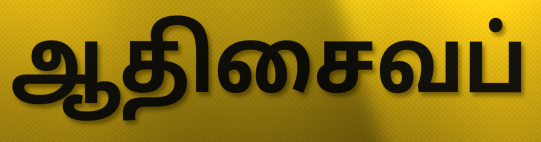
ஆதிசைவப்